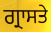
ਗ੍ਰਾਸਤੇ